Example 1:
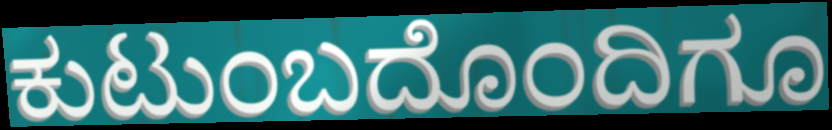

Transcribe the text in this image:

ಕುಟುಂಬದೊಂದಿಗೂ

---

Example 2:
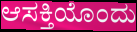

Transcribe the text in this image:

ಆಸಕ್ತಿಯೊಂದು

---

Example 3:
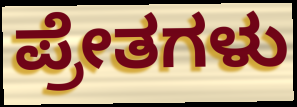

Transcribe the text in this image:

ಪ್ರೇತಗಳು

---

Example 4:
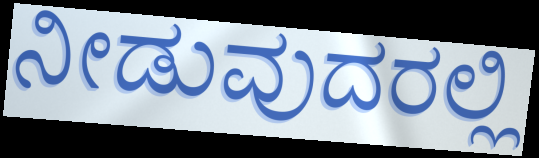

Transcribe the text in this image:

ನೀಡುವುದರಲ್ಲಿ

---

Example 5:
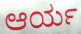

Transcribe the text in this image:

ಆರ್ಯ